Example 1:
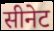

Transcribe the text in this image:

सीनेट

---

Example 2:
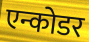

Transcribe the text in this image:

एन्कोडर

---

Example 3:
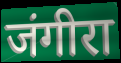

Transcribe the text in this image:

जंगीरा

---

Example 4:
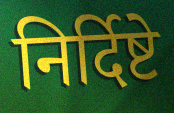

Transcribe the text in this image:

निर्दिष्टे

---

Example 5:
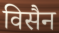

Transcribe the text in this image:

विसैन